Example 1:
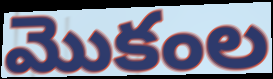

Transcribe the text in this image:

మొకంల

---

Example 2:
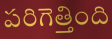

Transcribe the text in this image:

పరిగెత్తింది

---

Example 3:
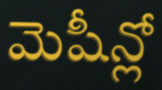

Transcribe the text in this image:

మెషీన్లో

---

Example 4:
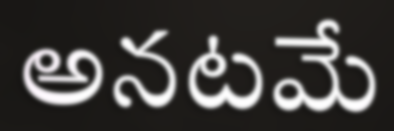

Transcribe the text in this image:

అనటమే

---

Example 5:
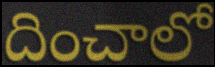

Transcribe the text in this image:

దించాలో